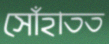
সোঁহাতত